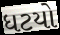
ધટયો